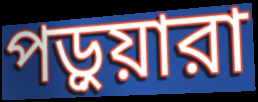
পড়ুয়ারা